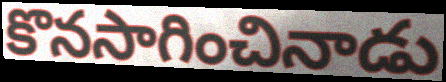
కొనసాగించినాడు